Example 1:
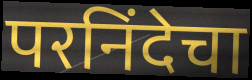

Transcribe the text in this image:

परनिंदेचा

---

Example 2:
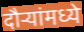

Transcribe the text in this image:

दौऱ्यांमध्ये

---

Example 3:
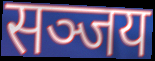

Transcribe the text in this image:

सञ्जय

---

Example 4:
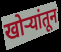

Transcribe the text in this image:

खोऱ्यांतून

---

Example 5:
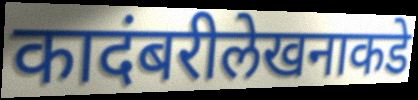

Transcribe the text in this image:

कादंबरीलेखनाकडे